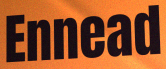
Ennead